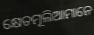
କ୍ଷେତମୂଲିଆମାନେ